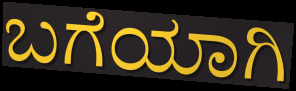
ಬಗೆಯಾಗಿ